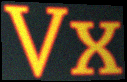
Vx